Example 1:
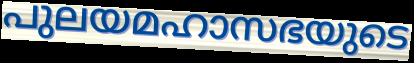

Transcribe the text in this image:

പുലയമഹാസഭയുടെ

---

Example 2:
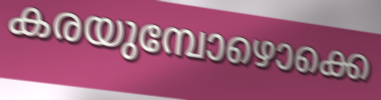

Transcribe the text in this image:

കരയുമ്പോഴൊക്കെ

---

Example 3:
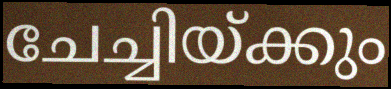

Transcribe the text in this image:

ചേച്ചിയ്ക്കും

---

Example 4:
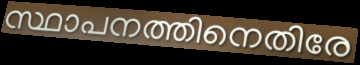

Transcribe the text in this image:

സ്ഥാപനത്തിനെതിരേ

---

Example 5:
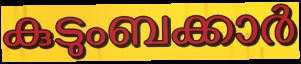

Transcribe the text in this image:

കുടുംബക്കാർ